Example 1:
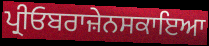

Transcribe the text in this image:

ਪ੍ਰੀਓਬਰਾਜ਼ੇਨਸਕਾਇਆ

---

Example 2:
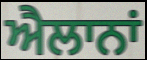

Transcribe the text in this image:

ਐਲਾਨਾਂ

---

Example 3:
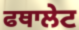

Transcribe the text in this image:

ਫਥਾਲੇਟ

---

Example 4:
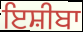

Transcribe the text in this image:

ਇਸ਼ੀਬਾ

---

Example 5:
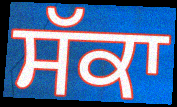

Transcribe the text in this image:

ਸੱਕਾ